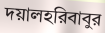
দয়ালহরিবাবুর